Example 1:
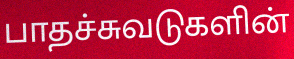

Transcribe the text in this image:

பாதச்சுவடுகளின்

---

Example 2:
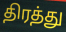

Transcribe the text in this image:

திரத்து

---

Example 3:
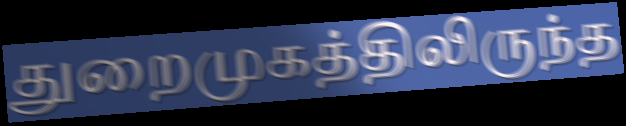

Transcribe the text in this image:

துறைமுகத்திலிருந்த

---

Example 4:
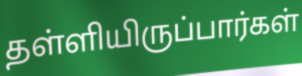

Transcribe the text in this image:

தள்ளியிருப்பார்கள்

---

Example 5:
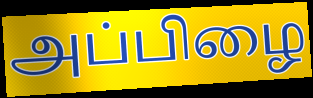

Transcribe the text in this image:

அப்பிழை